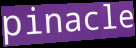
pinacle